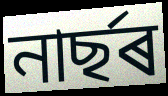
নাৰ্ছৰ